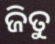
ଜିତୁ